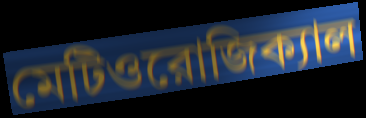
মেটিওরোজিক্যাল